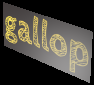
gallop